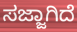
ಸಜ್ಜಾಗಿದೆ